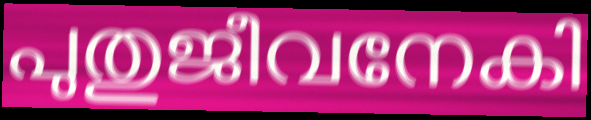
പുതുജീവനേകി